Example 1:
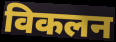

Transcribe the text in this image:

विकलन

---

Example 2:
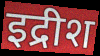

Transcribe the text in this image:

इद्रीश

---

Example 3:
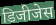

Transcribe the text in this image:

डिजीजेस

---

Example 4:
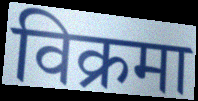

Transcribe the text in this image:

विक्रमा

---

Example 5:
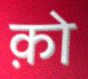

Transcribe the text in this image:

क़ो